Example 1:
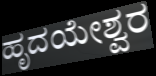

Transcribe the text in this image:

ಹೃದಯೇಶ್ವರ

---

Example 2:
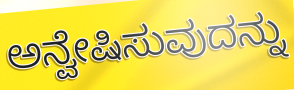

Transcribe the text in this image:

ಅನ್ವೇಷಿಸುವುದನ್ನು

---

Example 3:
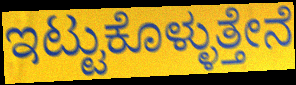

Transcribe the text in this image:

ಇಟ್ಟುಕೊಳ್ಳುತ್ತೇನೆ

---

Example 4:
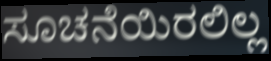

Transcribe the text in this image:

ಸೂಚನೆಯಿರಲಿಲ್ಲ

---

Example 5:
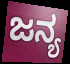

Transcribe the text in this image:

ಜನ್ಯ